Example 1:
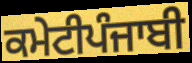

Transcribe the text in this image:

ਕਮੇਟੀਪੰਜਾਬੀ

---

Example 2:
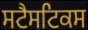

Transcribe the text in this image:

ਸਟੈਸਟਿਕਸ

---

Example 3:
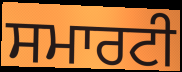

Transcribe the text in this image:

ਸਮਾਰਟੀ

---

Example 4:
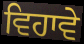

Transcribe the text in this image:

ਵਿਹਾਵੇ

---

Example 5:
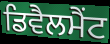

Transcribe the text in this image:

ਡਿਵੈਲਮੈਂਟ